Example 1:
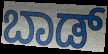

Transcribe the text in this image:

ಬಾಡ್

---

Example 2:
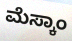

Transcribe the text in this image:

ಮೆಸ್ಕಾಂ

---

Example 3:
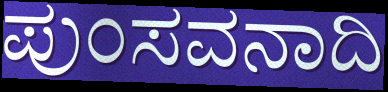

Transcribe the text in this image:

ಪುಂಸವನಾದಿ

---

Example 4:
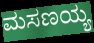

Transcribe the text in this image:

ಮಸಣಯ್ಯ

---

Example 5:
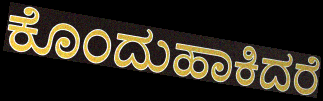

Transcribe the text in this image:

ಕೊಂದುಹಾಕಿದರೆ